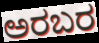
ಅರಬರ